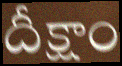
దీక్షాం